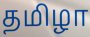
தமிழா